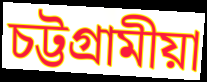
চট্টগ্ৰামীয়া